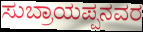
ಸುಬ್ರಾಯಪ್ಪನವರ